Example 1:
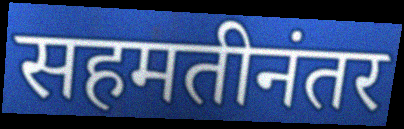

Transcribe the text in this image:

सहमतीनंतर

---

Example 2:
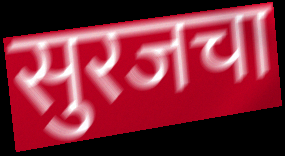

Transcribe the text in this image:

सुरजचा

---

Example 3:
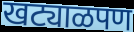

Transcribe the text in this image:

खट्याळपण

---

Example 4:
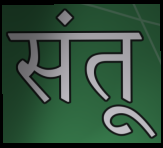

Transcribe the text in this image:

संतू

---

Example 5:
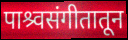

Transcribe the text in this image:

पाश्र्वसंगीतातून